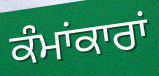
ਕੰਮਾਂਕਾਰਾਂ